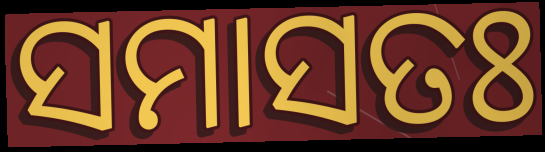
ସମାସତଃ